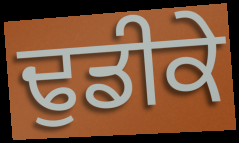
ਢੁਡੀਕੇ